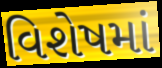
વિશેષમાં